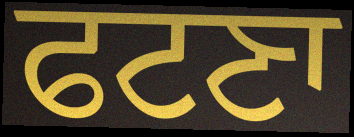
ਫਟਣਾ